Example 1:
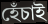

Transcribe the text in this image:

হেঁচাই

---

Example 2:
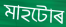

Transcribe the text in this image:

মাহটোৰ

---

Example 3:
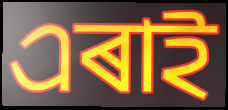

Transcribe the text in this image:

এৰাই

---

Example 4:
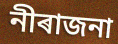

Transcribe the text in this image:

নীৰাজনা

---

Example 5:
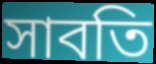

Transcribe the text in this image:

সাবতি